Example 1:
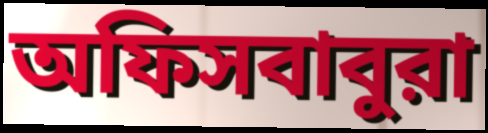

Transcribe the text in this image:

অফিসবাবুরা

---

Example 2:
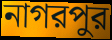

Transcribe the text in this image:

নাগরপুর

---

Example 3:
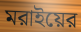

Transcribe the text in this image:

মরাইয়ের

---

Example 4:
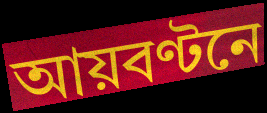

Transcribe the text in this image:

আয়বণ্টনে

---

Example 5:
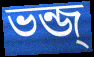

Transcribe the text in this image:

ভন্জ্